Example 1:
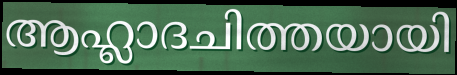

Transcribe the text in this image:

ആഹ്ലാദചിത്തയായി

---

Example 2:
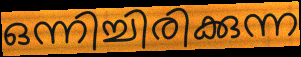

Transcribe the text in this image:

ഒന്നിച്ചിരിക്കുന്ന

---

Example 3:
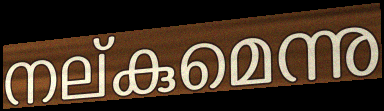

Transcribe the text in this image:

നല്‌കുമെന്നു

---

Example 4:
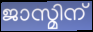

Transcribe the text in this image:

ജാസ്മിന്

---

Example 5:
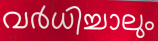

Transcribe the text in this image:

വർധിച്ചാലും